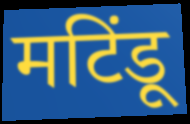
मटिंडू